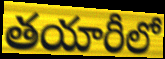
తయారీలో